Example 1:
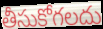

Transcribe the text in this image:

తీసుకోగలదు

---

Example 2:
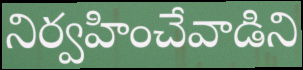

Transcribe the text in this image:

నిర్వహించేవాడిని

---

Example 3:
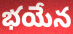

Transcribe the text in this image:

భయేన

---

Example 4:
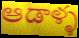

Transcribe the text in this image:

ఆడాళ్ళ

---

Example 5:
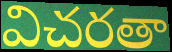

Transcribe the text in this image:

విచరతా